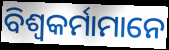
ବିଶ୍ଵକର୍ମାମାନେ